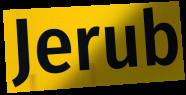
Jerub